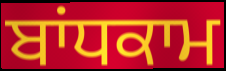
ਬਾਂਧਕਾਮ